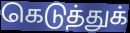
கெடுத்துக்